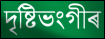
দৃষ্টিভংগীৰ